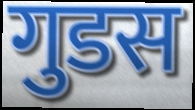
गुडस